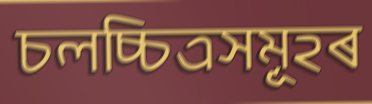
চলচ্চিত্ৰসমূহৰ